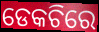
ଡେକଚିରେ